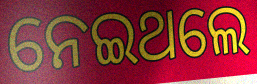
ନେଇଥଲେ